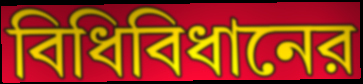
বিধিবিধানের